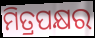
ମିତ୍ରପକ୍ଷର